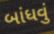
બાંધવું